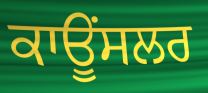
ਕਾਊਂਸਲਰ